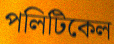
পলিটিকেল